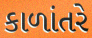
કાળાંતરે